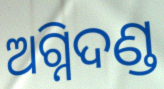
ଅଗ୍ନିଦଣ୍ଡ